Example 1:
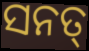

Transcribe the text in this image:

ସନତ୍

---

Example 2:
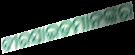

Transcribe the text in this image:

ବୀରସାଇତମାନଙ୍କର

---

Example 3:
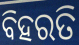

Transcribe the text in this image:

ବିହରତି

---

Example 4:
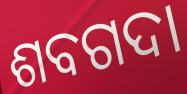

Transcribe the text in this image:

ଶବଗଦା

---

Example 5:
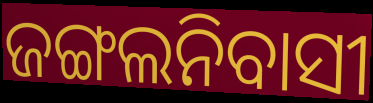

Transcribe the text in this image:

ଜଙ୍ଗଲନିବାସୀ